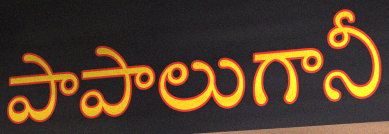
పాపాలుగానీ